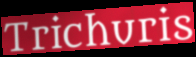
Trichuris